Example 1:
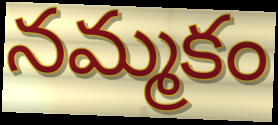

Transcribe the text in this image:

నమ్మకం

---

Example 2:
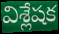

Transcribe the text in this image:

విశ్లేషక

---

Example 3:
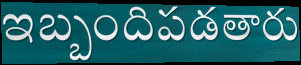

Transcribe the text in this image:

ఇబ్బందిపడతారు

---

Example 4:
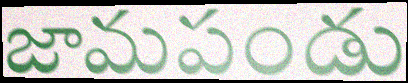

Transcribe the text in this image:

జామపండు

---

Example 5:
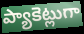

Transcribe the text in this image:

ప్యాకెట్లుగా